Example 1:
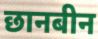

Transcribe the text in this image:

छानबीन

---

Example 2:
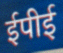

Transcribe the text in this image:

ईपीई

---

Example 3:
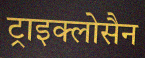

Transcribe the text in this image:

ट्राइक्लोसैन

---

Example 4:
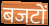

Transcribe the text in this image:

बजटों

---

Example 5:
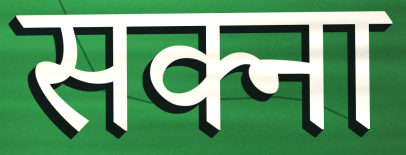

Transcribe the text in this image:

सक्ना